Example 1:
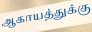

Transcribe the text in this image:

ஆகாயத்துக்கு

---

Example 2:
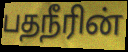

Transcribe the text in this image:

பதநீரின்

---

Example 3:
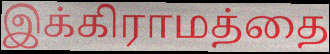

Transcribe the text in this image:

இக்கிராமத்தை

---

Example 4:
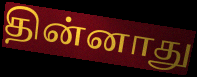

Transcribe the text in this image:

தின்னாது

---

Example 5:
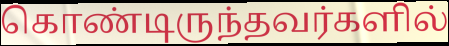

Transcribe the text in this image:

கொண்டிருந்தவர்களில்